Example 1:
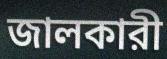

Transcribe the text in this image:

জালকারী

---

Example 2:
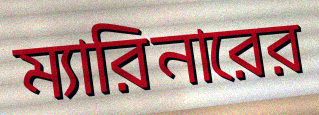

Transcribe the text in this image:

ম্যারিনারের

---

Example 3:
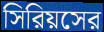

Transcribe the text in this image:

সিরিয়সের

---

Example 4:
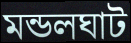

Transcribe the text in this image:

মন্ডলঘাট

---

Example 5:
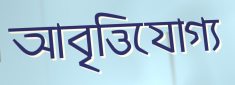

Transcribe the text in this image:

আবৃত্তিযোগ্য